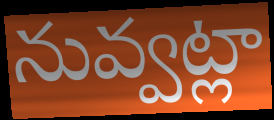
నువ్వట్లా